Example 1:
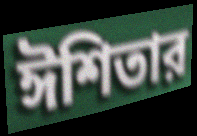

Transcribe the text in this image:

ঈশিতার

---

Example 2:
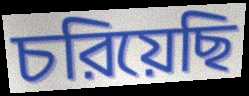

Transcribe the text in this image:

চরিয়েছি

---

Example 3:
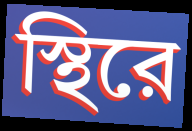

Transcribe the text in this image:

স্থিরে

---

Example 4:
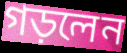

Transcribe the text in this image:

গড়লেন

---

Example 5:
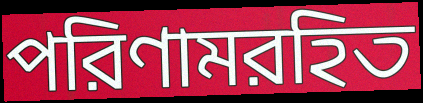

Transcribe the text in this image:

পরিণামরহিত